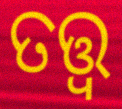
ତତ୍ତ୍ବ